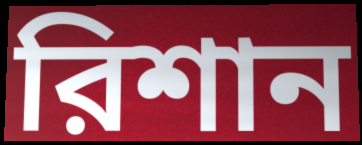
রিশান